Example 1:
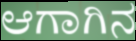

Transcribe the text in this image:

ಆಗಾಗಿನ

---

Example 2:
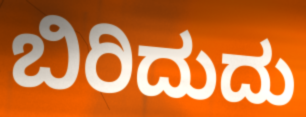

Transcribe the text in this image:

ಬಿರಿದುದು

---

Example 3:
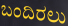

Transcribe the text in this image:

ಬಂದಿರಲು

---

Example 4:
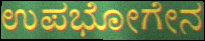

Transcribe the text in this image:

ಉಪಭೋಗೇನ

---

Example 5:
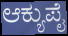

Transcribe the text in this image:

ಆಕ್ಯುಪೈ